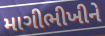
માગીભીખીને